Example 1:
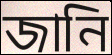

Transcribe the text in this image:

জানি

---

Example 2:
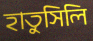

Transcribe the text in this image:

হাতুসিলি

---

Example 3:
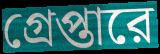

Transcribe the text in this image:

গ্রেপ্তারে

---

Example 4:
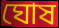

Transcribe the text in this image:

ঘোষ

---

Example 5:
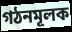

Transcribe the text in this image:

গঠনমূলক